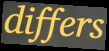
differs